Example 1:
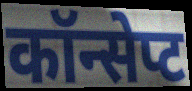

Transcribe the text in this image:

कॉन्सेप्ट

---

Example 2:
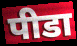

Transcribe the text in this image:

पीडा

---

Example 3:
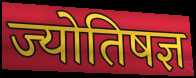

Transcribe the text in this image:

ज्योतिषज्ञ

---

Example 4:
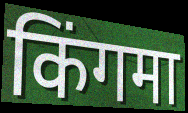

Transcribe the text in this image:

किंगमा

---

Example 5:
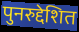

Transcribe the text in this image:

पुनरुद्देशित